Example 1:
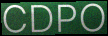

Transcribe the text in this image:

CDPO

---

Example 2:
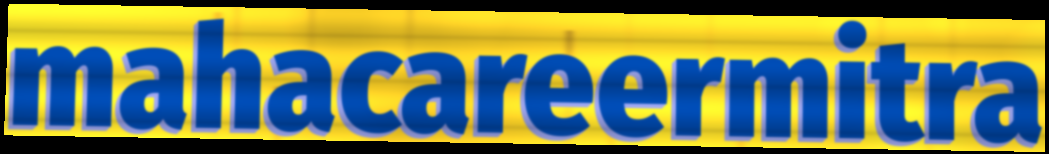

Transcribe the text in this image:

mahacareermitra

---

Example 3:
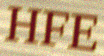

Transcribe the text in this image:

HFE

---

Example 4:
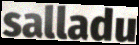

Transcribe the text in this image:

salladu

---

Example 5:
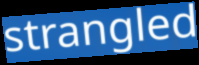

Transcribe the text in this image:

strangled